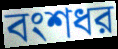
বংশধর